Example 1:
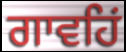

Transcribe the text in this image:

ਗਾਵਹਿਂ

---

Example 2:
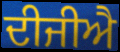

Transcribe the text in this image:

ਦੀਜੀਐ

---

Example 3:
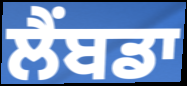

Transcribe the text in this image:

ਲੈਂਬਡਾ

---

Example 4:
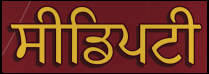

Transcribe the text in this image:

ਸੀਡਿਪਟੀ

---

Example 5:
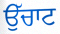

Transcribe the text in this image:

ਉੱਚਾਟ